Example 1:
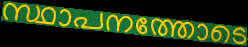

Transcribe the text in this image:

സ്ഥാപനത്തോടെ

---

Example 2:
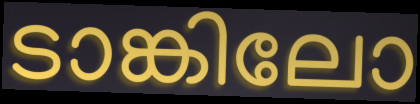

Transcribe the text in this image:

ടാങ്കിലോ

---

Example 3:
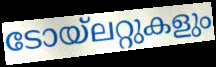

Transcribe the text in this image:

ടോയ്ലറ്റുകളും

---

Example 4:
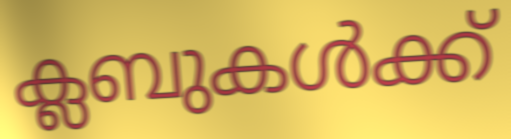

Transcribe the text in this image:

ക്ലബുകൾക്ക്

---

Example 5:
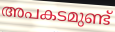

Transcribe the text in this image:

അപകടമുണ്ട്